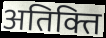
अतिक्ति